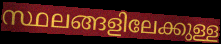
സ്ഥലങ്ങളിലേക്കുള്ള